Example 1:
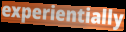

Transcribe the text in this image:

experientially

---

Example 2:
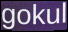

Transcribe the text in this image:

gokul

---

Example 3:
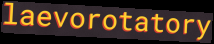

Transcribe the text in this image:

laevorotatory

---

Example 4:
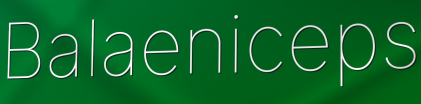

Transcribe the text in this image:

Balaeniceps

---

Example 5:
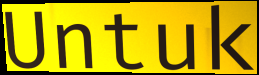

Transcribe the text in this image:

Untuk